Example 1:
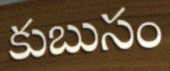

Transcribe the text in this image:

కుబుసం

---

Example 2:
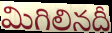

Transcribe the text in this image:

మిగిలినదీ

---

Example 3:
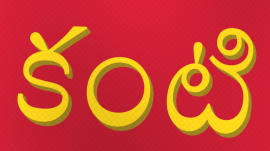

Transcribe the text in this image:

కంటి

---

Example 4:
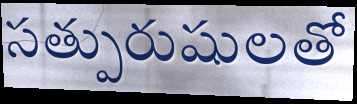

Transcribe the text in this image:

సత్పురుషులతో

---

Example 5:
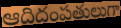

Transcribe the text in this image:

ఆదిదంపతులుగా